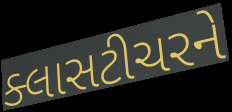
ક્લાસટીચરને